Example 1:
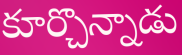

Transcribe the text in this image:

కూర్చొన్నాడు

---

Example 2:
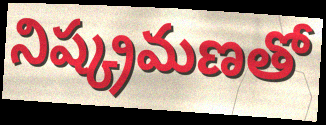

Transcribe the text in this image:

నిష్క్రమణతో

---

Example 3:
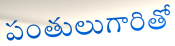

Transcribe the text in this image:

పంతులుగారితో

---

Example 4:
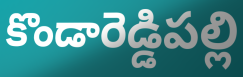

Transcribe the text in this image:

కొండారెడ్డిపల్లి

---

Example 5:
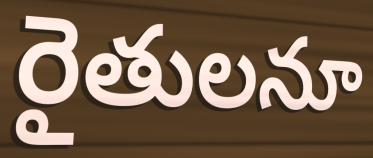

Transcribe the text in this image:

రైతులనూ